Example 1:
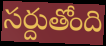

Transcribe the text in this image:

సర్దుతోంది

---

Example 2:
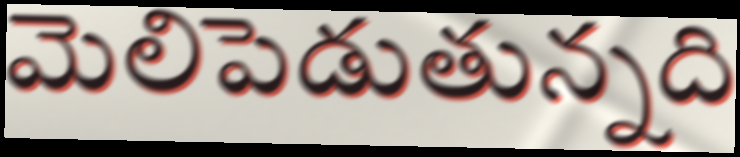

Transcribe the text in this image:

మెలిపెడుతున్నది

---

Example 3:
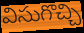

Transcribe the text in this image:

విసుగొచ్చి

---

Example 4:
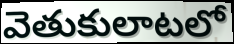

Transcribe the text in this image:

వెతుకులాటలో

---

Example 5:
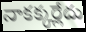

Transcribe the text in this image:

నాకక్కర్లేదు